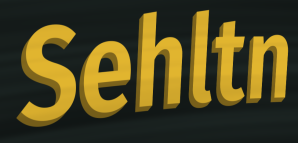
Sehltn